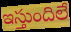
ఇస్తుందిలే